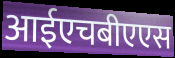
आईएचबीएएस